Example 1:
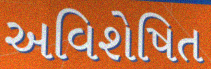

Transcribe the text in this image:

અવિશેષિત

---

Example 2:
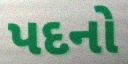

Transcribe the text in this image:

પદનો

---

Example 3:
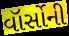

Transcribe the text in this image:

વૉર્સોની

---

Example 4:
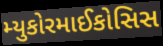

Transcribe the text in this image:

મ્યુકોરમાઈકોસિસ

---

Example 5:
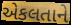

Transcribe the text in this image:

એકલતાને